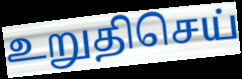
உறுதிசெய்